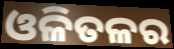
ଓଳିତଳର